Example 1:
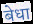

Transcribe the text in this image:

बेधा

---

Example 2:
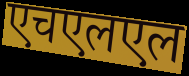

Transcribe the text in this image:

एचएलएल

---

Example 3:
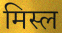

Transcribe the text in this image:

मिस्ल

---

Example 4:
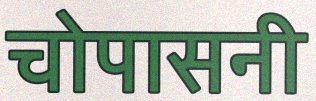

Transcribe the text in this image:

चोपासनी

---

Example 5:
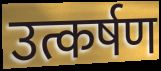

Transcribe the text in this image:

उत्कर्षण